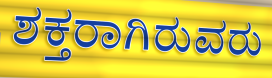
ಶಕ್ತರಾಗಿರುವರು